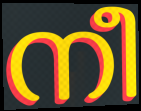
നീ